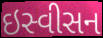
ઇસ્વીસન